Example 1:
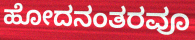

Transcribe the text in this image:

ಹೋದನಂತರವೂ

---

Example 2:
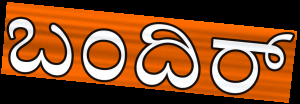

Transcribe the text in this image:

ಬಂದಿರ್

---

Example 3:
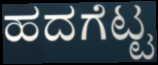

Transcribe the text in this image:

ಹದಗೆಟ್ಟ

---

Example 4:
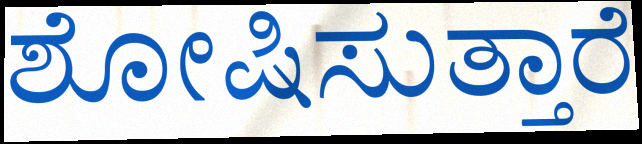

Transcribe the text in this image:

ಶೋಷಿಸುತ್ತಾರೆ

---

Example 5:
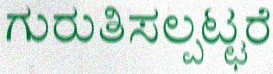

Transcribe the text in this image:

ಗುರುತಿಸಲ್ಪಟ್ಟರೆ